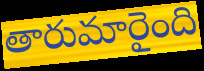
తారుమారైంది